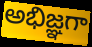
అభిజ్ఞగా